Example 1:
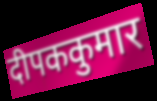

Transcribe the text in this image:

दीपककुमार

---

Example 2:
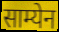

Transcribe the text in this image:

साम्येन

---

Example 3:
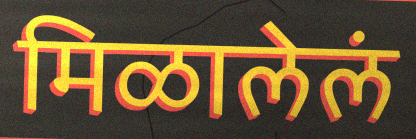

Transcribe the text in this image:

मिळालेलं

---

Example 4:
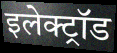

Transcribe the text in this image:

इलेक्ट्रॉड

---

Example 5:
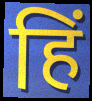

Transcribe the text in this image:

हिं